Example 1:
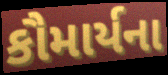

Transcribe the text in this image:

કૌમાર્યના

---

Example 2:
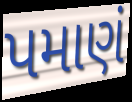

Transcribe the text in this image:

પમાણં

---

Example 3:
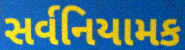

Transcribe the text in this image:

સર્વનિયામક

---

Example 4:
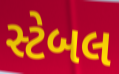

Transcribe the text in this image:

સ્ટેબલ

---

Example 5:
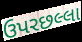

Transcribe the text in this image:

ઉપરછલ્લા